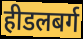
हीडलबर्ग